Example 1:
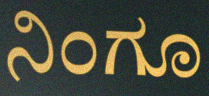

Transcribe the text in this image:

ನಿಂಗೂ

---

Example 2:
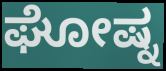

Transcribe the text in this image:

ಘೋಷ್ನ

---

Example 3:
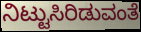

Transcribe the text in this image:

ನಿಟ್ಟುಸಿರಿಡುವಂತೆ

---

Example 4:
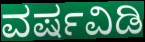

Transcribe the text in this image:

ವರ್ಷವಿಡಿ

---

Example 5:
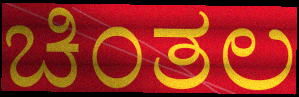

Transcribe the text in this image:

ಚಿಂತಲ